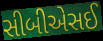
સીબીએસઈ